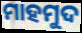
ମାହମୁଦ